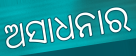
ଅସାଧନାର